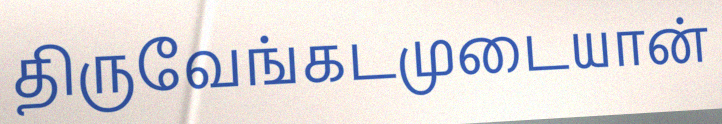
திருவேங்கடமுடையான்